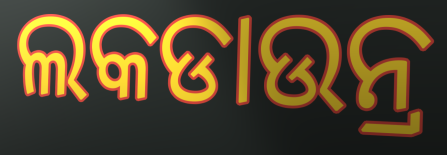
ଲକଡାଉନ୍ର